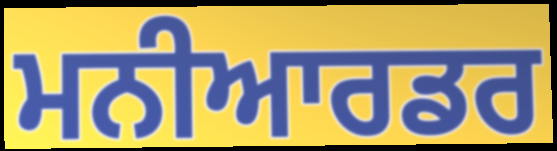
ਮਨੀਆਰਡਰ